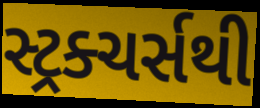
સ્ટ્રક્ચર્સથી